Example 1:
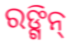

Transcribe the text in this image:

ରଙ୍ଗିନ୍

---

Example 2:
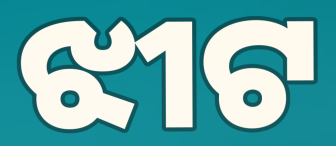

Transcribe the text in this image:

ଝୀଟ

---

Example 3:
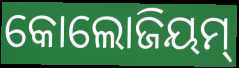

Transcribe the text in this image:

କୋଲୋଜିୟମ୍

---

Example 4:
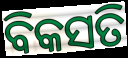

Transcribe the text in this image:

ବିକସତି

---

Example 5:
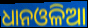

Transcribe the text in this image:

ଧାନଓଳିଆ